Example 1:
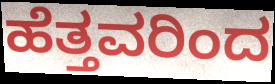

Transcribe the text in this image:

ಹೆತ್ತವರಿಂದ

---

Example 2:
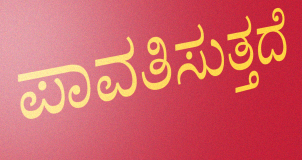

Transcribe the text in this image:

ಪಾವತಿಸುತ್ತದೆ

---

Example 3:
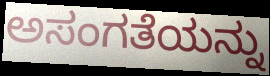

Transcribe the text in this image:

ಅಸಂಗತೆಯನ್ನು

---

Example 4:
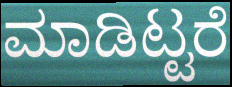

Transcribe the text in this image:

ಮಾಡಿಟ್ಟರೆ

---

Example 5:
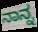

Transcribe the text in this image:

ನಾನ್ನ